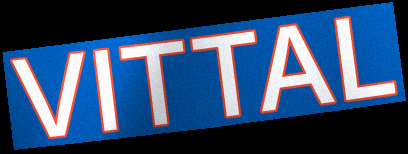
VITTAL